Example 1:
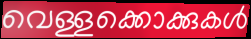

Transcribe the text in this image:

വെള്ളക്കൊക്കുകൾ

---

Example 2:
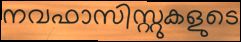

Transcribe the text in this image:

നവഫാസിസ്റ്റുകളുടെ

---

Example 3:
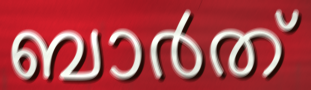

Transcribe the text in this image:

ബാർത്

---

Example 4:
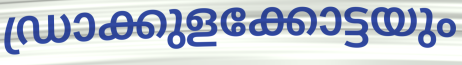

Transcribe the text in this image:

ഡ്രാക്കുളക്കോട്ടയും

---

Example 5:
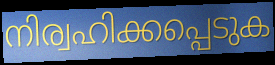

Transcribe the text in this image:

നിര്വഹിക്കപ്പെടുക